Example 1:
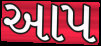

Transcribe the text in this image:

આપ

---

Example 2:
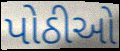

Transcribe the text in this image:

પોઠીઓ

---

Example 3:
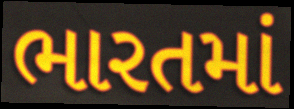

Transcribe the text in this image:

ભારતમાં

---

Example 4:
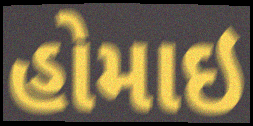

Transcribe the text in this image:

હોમાઇ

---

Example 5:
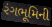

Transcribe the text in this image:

રંગભૂમિની